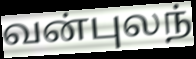
வன்புலந்